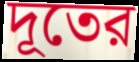
দূতের